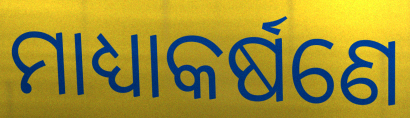
ମାଧ୍ୟାକର୍ଷଣେ